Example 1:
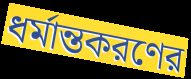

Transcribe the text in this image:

ধর্মান্তকরণের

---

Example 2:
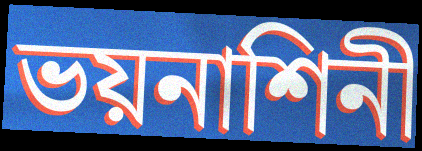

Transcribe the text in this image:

ভয়নাশিনী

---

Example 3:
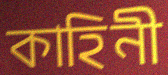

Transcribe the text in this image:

কাহিনী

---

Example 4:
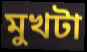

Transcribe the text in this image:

মুখটা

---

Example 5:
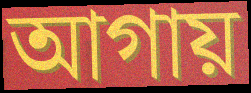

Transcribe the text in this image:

আগায়